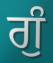
ਗੁੰ